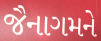
જૈનાગમને